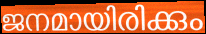
ജനമായിരിക്കും